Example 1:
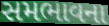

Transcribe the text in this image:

સમભાવના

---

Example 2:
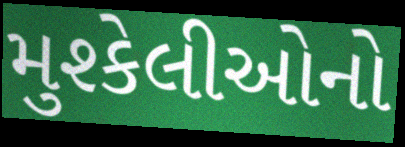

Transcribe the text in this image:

મુશ્કેલીઓનો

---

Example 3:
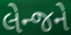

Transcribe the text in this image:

લેન્જને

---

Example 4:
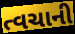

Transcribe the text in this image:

ત્વચાની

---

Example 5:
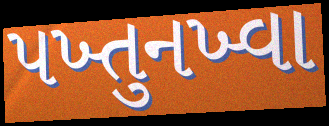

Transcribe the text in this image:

પખ્તુનખ્વા